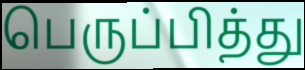
பெருப்பித்து